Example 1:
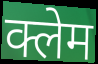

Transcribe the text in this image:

क्लेम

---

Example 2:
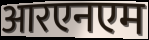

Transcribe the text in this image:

आरएनएम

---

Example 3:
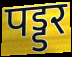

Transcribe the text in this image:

पड्डर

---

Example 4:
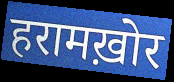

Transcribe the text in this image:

हरामख़ोर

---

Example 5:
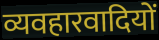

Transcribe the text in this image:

व्यवहारवादियों